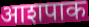
आशपाक